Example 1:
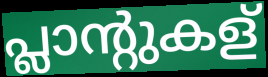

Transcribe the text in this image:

പ്ലാന്റുകള്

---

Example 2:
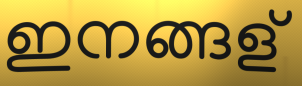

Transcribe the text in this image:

ഇനങ്ങള്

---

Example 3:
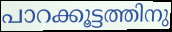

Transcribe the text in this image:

പാറക്കൂട്ടത്തിനു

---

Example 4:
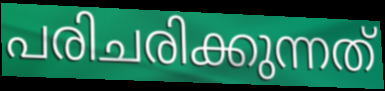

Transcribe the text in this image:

പരിചരിക്കുന്നത്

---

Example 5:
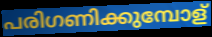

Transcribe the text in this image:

പരിഗണിക്കുമ്പോള്